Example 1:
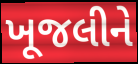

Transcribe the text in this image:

ખૂજલીને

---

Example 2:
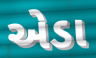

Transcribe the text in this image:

એડા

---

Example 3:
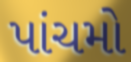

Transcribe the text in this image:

પાંચમો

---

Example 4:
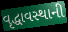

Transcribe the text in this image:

વૃદ્ધાવસ્થાની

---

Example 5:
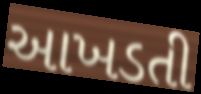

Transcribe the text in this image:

આખડતી